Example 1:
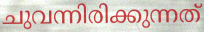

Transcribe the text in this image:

ചുവന്നിരിക്കുന്നത്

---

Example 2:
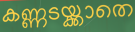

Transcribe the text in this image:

കണ്ണടയ്ക്കാതെ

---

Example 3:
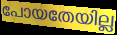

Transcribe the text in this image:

പോയതേയില്ല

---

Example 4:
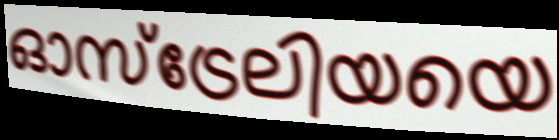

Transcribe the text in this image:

ഓസ്ട്രേലിയയെ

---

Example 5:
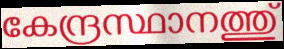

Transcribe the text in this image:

കേന്ദ്രസ്ഥാനത്തു്